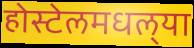
होस्टेलमधल्या